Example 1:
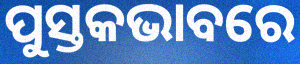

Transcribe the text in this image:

ପୁସ୍ତକଭାବରେ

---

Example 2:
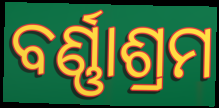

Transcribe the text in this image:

ବର୍ଣ୍ଣାଶ୍ରମ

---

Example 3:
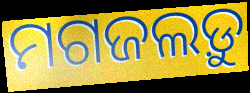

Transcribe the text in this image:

ମଗଜଲଡ଼ୁ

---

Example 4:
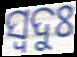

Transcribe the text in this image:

ସ୍ବଦୁଃ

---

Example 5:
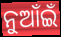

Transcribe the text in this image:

ନୁଆଁଇଁ